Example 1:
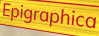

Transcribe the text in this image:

Epigraphica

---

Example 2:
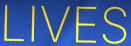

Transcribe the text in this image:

LIVES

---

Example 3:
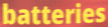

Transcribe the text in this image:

batteries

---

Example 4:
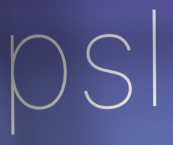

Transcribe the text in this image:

psl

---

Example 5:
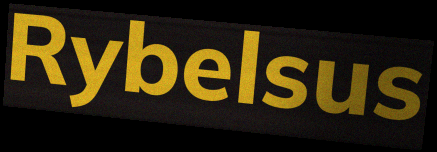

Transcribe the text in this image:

Rybelsus